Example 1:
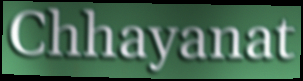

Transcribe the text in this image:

Chhayanat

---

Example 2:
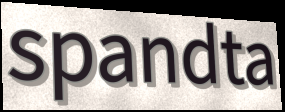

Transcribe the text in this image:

spandta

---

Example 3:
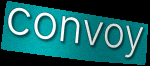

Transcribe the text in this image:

convoy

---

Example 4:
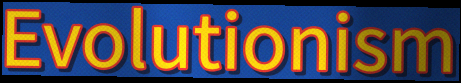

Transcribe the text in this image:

Evolutionism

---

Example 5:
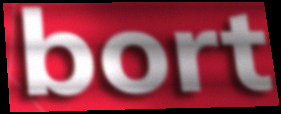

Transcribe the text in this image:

bort